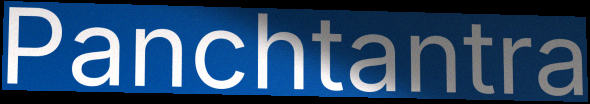
Panchtantra